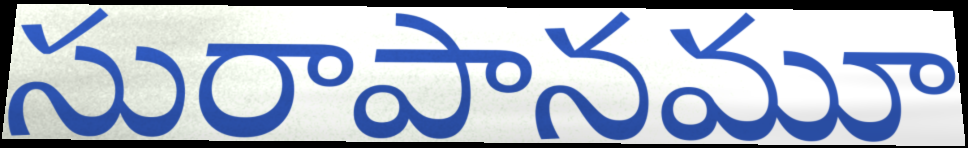
సురాపానమూ